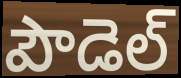
పౌడెల్